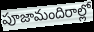
పూజామందిరాల్లో